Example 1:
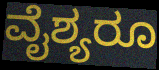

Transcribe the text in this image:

ವೈಶ್ಯರೂ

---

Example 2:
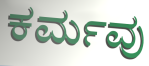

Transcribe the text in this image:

ಕರ್ಮವು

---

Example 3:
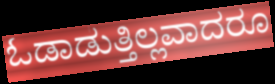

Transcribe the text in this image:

ಓಡಾಡುತ್ತಿಲ್ಲವಾದರೂ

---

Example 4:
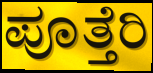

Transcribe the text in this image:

ಪೂತ್ತೆರಿ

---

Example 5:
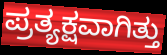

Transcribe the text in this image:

ಪ್ರತ್ಯಕ್ಷವಾಗಿತ್ತು